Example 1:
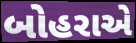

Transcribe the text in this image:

બોહરાએ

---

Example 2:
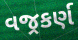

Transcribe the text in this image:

વજ્રકર્ણ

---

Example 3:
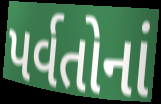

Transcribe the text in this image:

પર્વતોનાં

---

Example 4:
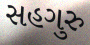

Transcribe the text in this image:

સહગુરુ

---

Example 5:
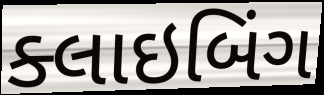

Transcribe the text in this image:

ક્લાઇબિંગ